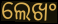
ଲେଖଂ